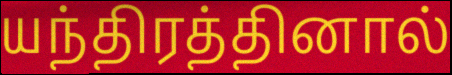
யந்திரத்தினால்